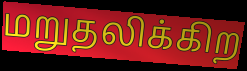
மறுதலிக்கிற